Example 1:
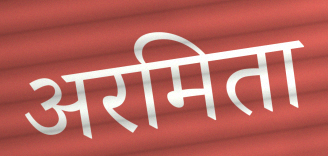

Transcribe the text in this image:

अरमिता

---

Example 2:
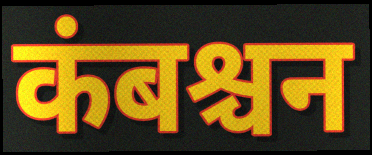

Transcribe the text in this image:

कंबश्चन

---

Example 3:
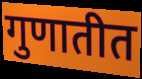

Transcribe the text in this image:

गुणातीत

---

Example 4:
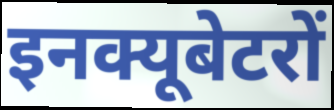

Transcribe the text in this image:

इनक्यूबेटरों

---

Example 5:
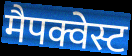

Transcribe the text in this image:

मैपक्वेस्ट